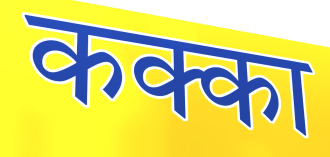
कक्का